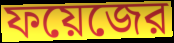
ফয়েজের